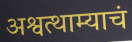
अश्वत्थाम्याचं